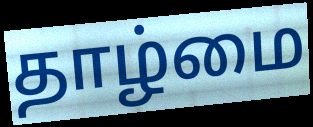
தாழ்மை